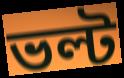
ভল্ট